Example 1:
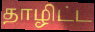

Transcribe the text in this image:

தாழிட்ட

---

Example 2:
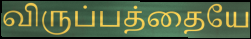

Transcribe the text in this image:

விருப்பத்தையே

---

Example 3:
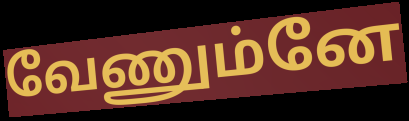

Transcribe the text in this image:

வேணும்னே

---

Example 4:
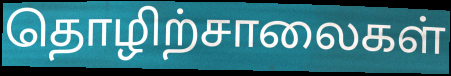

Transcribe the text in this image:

தொழிற்சாலைகள்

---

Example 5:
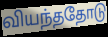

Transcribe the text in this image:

வியந்ததோடு